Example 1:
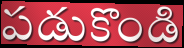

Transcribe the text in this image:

పడుకొండి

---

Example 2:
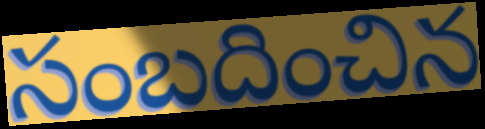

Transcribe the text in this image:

సంబదించిన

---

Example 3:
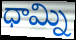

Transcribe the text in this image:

ధామ్ని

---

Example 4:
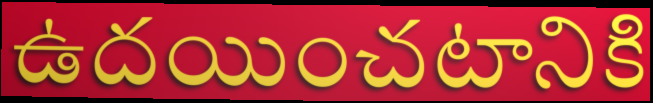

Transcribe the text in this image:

ఉదయించటానికి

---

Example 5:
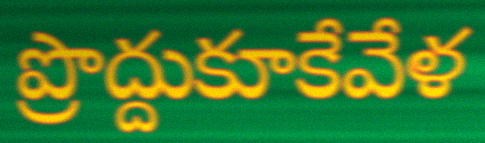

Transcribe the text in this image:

ప్రొద్దుకూకేవేళ